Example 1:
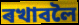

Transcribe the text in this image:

ৰখাবলৈ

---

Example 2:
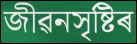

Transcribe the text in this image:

জীৱনসৃষ্টিৰ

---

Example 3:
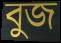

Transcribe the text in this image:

বুজ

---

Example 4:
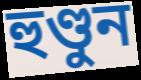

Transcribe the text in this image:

হুণ্ডুন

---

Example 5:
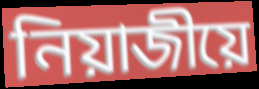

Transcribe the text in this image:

নিয়াজীয়ে